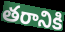
తరానికి